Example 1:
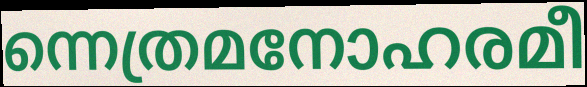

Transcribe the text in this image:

ന്നെത്രമനോഹരമീ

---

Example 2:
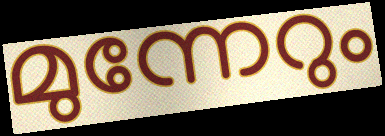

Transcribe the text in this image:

മുന്നേറും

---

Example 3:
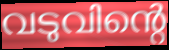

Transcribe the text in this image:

വടുവിന്റെ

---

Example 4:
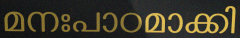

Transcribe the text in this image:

മനഃപാഠമാക്കി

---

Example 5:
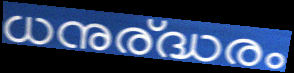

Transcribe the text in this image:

ധനുര്ദ്ധരം